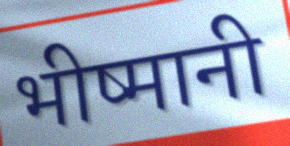
भीष्मानी